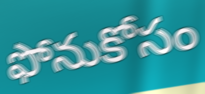
ఫోనుకోసం